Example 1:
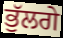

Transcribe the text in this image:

ਭੁੱਲਗੇ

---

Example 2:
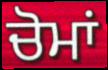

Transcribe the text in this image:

ਚੋਮਾਂ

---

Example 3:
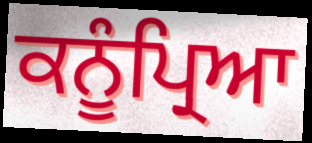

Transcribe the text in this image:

ਕਨੂੰਪ੍ਰਿਆ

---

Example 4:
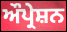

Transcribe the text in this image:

ਔਪ੍ਰੇਸ਼ਨ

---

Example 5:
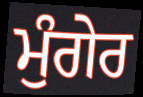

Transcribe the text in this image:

ਮੁੰਗੇਰ